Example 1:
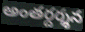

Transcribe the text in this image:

అంతర్దర్శన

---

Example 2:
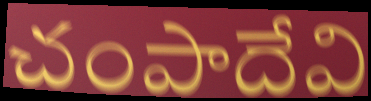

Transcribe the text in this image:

చంపాదేవి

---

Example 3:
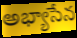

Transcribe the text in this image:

అభ్యాసేన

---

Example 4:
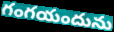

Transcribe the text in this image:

గంగయందును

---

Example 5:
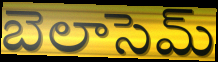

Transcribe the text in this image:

బెలాసెమ్